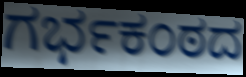
ಗರ್ಭಕಂಠದ